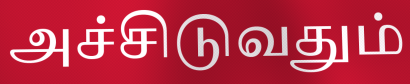
அச்சிடுவதும்